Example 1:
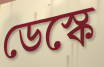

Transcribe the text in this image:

ডেস্কে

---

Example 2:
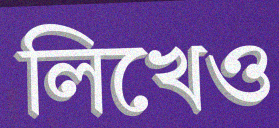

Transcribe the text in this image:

লিখেও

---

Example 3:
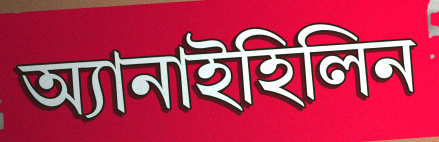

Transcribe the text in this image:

অ্যানাইহিলিন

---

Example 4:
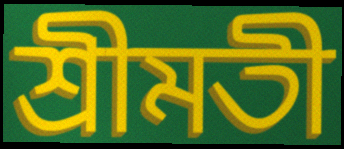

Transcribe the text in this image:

শ্রীমতী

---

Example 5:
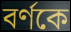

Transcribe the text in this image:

বর্ণকে